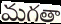
మగతా